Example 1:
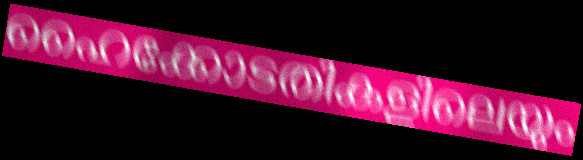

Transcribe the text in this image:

ഹൈക്കോടതികളിലെയും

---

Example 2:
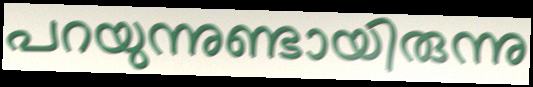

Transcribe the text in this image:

പറയുന്നുണ്ടായിരുന്നു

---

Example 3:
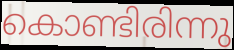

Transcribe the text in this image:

കൊണ്ടിരിന്നു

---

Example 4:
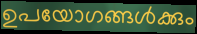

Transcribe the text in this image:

ഉപയോഗങ്ങൾക്കും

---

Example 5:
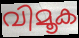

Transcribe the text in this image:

വിമൂക